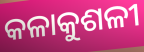
କଳାକୁଶଳୀ